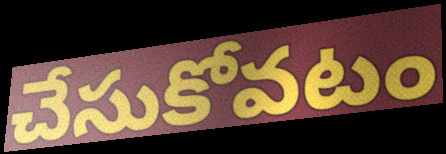
చేసుకోవటం